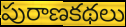
పురాణకథలు